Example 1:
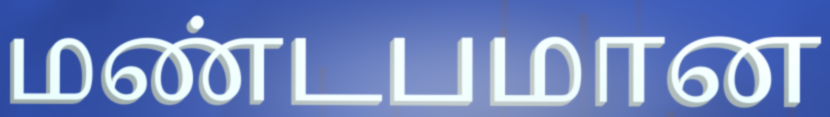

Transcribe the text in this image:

மண்டபமான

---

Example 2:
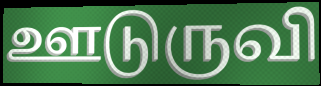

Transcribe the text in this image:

ஊடுருவி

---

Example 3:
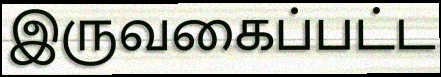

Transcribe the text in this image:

இருவகைப்பட்ட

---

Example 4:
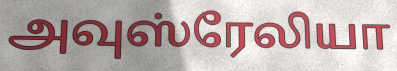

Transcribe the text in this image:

அவுஸ்ரேலியா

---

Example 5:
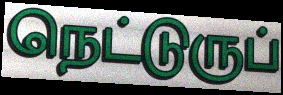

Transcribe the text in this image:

நெட்டுருப்